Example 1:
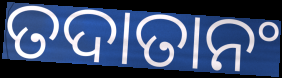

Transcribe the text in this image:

ତଦାତାନଂ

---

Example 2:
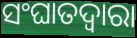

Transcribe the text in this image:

ସଂଘାତଦ୍ୱାରା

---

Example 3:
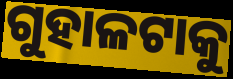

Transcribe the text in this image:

ଗୁହାଳଟାକୁ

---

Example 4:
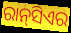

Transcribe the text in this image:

ରାନ୍‌ସିଏର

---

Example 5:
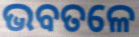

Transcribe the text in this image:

ଭବତଳେ